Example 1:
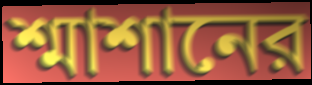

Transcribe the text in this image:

শ্মাশানের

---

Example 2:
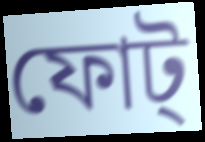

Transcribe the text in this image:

ফোট্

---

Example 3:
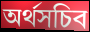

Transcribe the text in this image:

অর্থসচিব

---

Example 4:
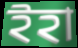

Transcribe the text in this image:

ইহা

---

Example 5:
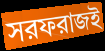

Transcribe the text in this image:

সরফরাজই